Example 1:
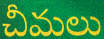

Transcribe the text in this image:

చీమలు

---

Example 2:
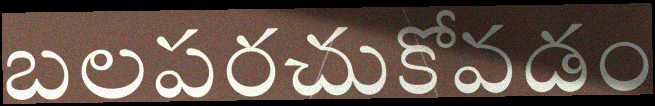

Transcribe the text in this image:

బలపరచుకోవడం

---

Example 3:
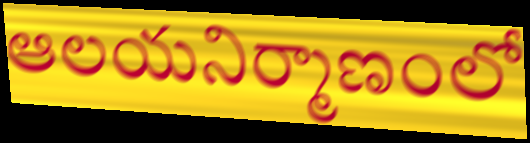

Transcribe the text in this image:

ఆలయనిర్మాణంలో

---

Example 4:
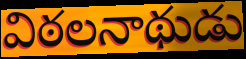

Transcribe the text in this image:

విఠలనాథుడు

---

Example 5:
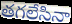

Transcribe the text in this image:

తగలేసినా